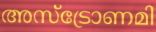
അസ്ട്രോണമി